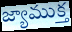
జ్యాముక్త